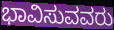
ಭಾವಿಸುವವರು